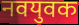
नवयुवक